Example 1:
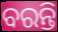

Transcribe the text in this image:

ବରନ୍ତି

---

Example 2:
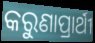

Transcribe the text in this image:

କରୁଣାପ୍ରାର୍ଥୀ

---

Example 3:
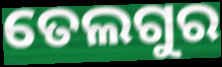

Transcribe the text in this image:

ତେଲଗୁର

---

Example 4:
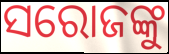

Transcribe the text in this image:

ସରୋଜଙ୍କୁ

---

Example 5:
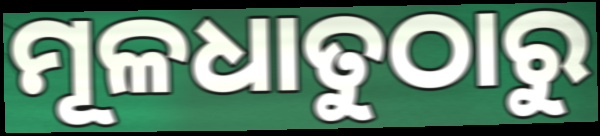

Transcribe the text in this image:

ମୂଳଧାତୁଠାରୁ